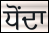
ਧੋਂਦਾ